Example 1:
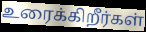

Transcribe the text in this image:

உரைக்கிறீர்கள்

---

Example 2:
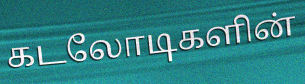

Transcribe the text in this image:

கடலோடிகளின்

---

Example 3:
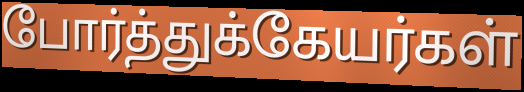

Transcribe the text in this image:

போர்த்துக்கேயர்கள்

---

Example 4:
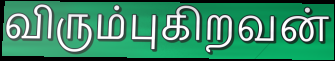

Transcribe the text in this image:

விரும்புகிறவன்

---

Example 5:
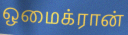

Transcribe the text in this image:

ஒமைக்ரான்